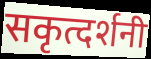
सकृत्दर्शनी